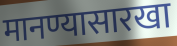
मानण्यासारखा